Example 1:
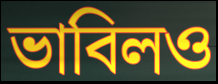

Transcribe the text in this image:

ভাবিলও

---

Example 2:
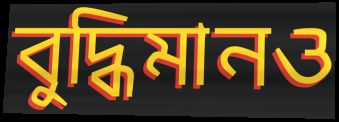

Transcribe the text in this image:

বুদ্ধিমানও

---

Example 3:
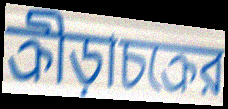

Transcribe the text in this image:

ক্রীড়াচক্রের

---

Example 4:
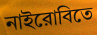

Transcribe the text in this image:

নাইরোবিতে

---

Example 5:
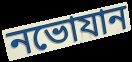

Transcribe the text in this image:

নভোযান